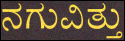
ನಗುವಿತ್ತು